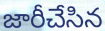
జారీచేసిన